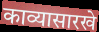
काव्यासारखे